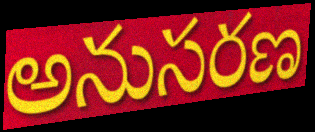
అనుసరణ